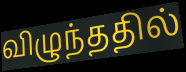
விழுந்ததில்